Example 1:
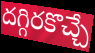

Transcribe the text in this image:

దగ్గిరకొచ్చే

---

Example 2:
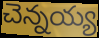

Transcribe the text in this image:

చెన్నయ్య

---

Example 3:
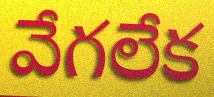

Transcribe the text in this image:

వేగలేక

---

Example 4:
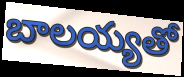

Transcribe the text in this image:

బాలయ్యతో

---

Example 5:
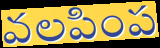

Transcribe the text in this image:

వలపింప